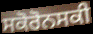
ਸਕੋਰੋਨਸਕੀ